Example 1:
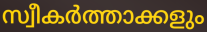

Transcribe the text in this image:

സ്വീകർത്താക്കളും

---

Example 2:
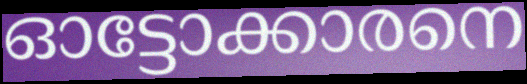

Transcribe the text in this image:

ഓട്ടോക്കാരനെ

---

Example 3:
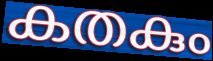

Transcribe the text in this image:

കതകും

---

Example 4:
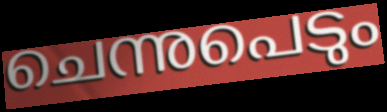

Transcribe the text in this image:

ചെന്നുപെടും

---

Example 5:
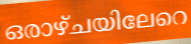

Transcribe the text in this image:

ഒരാഴ്ചയിലേറെ